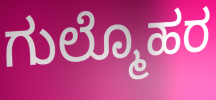
ಗುಲ್ಮೊಹರ